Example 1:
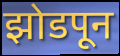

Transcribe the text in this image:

झोडपून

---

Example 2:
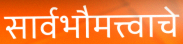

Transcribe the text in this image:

सार्वभौमत्त्वाचे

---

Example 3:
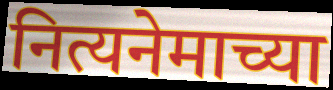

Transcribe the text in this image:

नित्यनेमाच्या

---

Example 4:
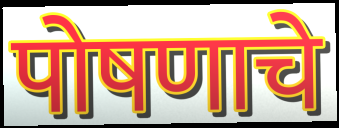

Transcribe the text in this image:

पोषणाचे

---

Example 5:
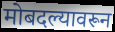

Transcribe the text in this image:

मोबदल्यावरून